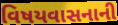
વિષયવાસનાની